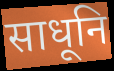
साधूनि